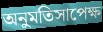
অনুমতিসাপেক্ষ